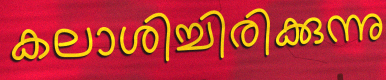
കലാശിച്ചിരിക്കുന്നു